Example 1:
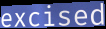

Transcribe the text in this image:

excised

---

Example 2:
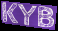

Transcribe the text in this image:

KYB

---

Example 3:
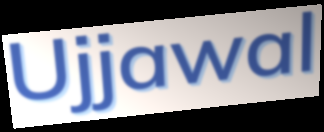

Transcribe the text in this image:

Ujjawal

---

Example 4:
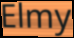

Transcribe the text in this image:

Elmy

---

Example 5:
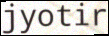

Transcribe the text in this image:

jyotir